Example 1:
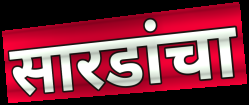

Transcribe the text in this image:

सारडांचा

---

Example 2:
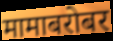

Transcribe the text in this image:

मामाबरोबर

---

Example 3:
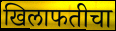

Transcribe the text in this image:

खिलाफतीचा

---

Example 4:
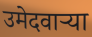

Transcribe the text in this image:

उमेदवाऱ्या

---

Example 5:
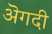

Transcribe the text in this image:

ऄगदी